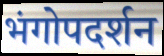
भंगोपदर्शन